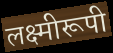
लक्ष्मीरूपी